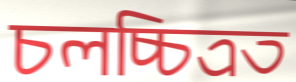
চলচ্চিত্ৰত